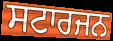
ਸਟਾਰਜਨ